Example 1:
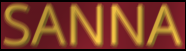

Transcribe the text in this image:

SANNA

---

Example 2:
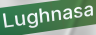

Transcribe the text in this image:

Lughnasa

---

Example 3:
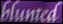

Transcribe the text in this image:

blunted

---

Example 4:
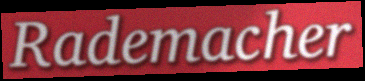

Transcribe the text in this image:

Rademacher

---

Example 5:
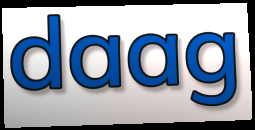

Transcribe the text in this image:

daag